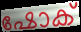
ഷോക്